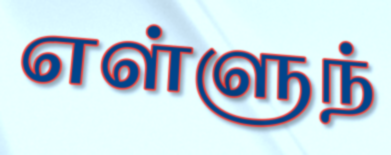
எள்ளுந்